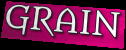
GRAIN